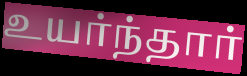
உயர்ந்தார்